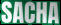
SACHA